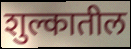
शुल्कातील